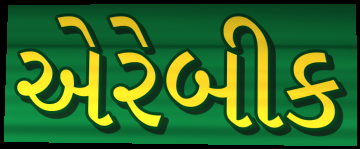
એરેબીક